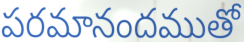
పరమానందముతో